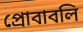
প্রোবাবলি